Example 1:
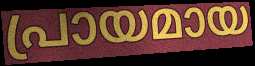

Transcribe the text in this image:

പ്രായമായ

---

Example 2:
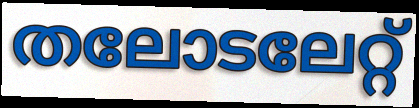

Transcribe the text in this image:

തലോടലേറ്റ്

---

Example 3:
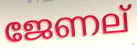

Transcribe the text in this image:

ജേണല്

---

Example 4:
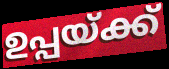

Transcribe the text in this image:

ഉപ്പയ്ക്ക്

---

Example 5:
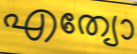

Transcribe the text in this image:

എത്യോ